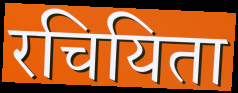
रचियिता